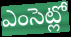
ఎంసెట్లో